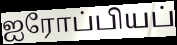
ஐரோப்பியப்